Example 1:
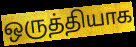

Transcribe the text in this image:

ஒருத்தியாக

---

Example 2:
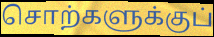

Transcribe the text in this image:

சொற்களுக்குப்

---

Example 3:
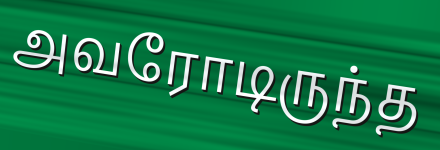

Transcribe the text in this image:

அவரோடிருந்த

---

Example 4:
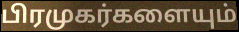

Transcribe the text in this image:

பிரமுகர்களையும்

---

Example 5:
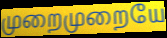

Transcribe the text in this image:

முறைமுறையே